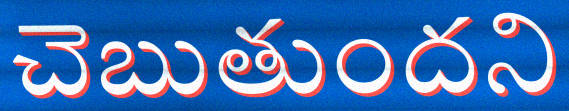
చెబుతుందని